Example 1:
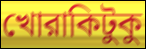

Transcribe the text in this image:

খোরাকিটুকু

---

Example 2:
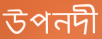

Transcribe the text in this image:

উপনদী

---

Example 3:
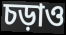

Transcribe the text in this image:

চড়াও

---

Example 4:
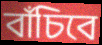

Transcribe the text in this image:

বাঁচিবে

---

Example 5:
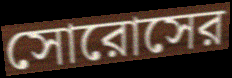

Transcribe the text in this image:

সোরোসের